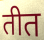
तीत